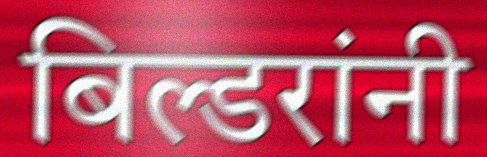
बिल्डरांनी